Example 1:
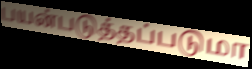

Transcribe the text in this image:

பயன்படுத்தப்படுமா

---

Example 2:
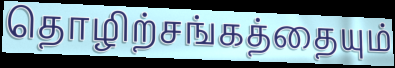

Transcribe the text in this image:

தொழிற்சங்கத்தையும்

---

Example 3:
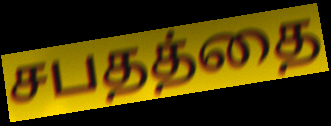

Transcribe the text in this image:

சபதத்தை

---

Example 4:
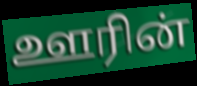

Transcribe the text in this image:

ஊரின்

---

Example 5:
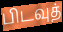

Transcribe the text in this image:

பிடவுத்